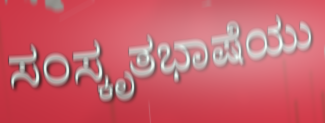
ಸಂಸ್ಕೃತಭಾಷೆಯು